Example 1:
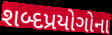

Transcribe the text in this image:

શબ્દપ્રયોગોના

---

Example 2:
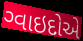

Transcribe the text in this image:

ગ્વાઇદોએ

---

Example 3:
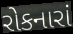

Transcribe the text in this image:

રોકનારાં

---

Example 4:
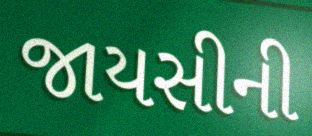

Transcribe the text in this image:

જાયસીની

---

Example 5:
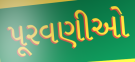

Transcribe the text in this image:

પૂરવણીઓ